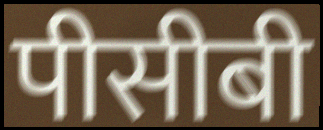
पीसीबी